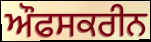
ਔਫਸਕਰੀਨ